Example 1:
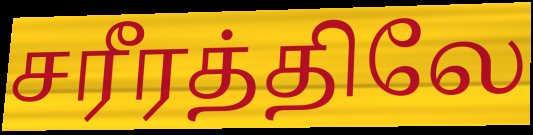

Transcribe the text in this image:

சரீரத்திலே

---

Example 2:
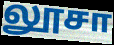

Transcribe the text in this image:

லூசா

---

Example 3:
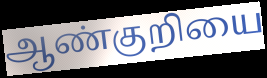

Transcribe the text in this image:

ஆண்குறியை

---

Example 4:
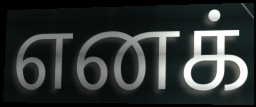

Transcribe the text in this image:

எனக்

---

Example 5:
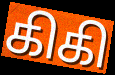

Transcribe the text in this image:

கிகி